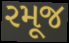
રમૂજ